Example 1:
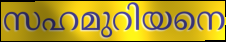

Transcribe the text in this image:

സഹമുറിയനെ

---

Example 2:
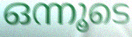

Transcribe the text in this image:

ഒന്നൂടെ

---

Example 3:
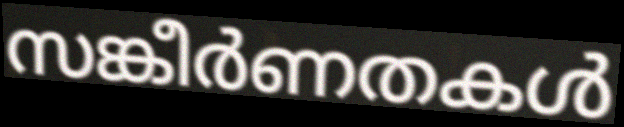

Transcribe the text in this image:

സങ്കീർണതകൾ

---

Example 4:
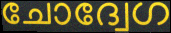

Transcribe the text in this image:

ചോദ്വേഗ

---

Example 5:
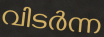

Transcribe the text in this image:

വിടർന്ന